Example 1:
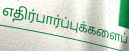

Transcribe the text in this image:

எதிர்பார்ப்புக்களைப்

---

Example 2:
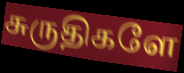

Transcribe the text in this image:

சுருதிகளே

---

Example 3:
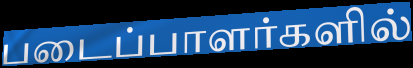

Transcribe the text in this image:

படைப்பாளர்களில்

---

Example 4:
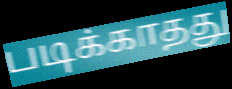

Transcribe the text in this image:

படிக்காதது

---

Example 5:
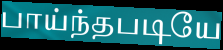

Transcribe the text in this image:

பாய்ந்தபடியே